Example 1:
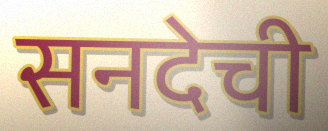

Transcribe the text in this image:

सनदेची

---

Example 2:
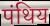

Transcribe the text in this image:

पंथिय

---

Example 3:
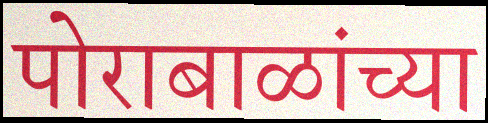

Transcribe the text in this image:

पोराबाळांच्या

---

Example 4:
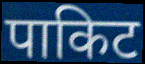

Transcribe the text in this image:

पाकिट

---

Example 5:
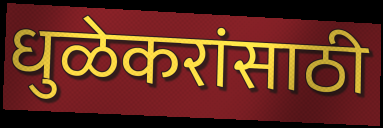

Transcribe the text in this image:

धुळेकरांसाठी